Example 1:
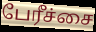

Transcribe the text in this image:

பேரீச்சை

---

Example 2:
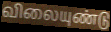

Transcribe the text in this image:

விலையுண்டு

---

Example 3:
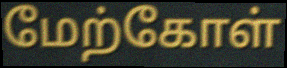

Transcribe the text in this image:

மேற்கோள்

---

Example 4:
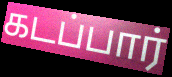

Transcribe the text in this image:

கடப்பார்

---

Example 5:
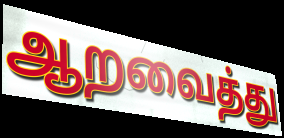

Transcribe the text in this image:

ஆறவைத்து